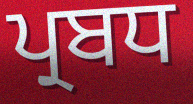
ਪ੍ਰਬਧ